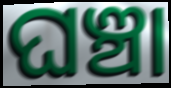
ଘଞ୍ଚା